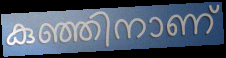
കുഞ്ഞിനാണ്